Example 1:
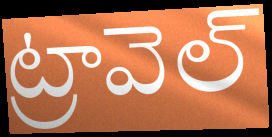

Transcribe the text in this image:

ట్రావెల్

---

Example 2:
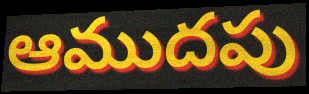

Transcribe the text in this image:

ఆముదపు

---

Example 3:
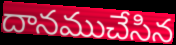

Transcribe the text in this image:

దానముచేసిన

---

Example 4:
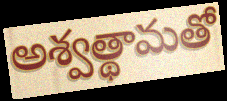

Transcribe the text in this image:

అశ్వత్థామతో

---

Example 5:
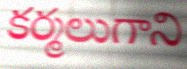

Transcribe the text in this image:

కర్మలుగాని